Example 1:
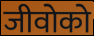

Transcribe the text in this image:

जीवोको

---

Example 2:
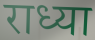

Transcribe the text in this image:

राध्या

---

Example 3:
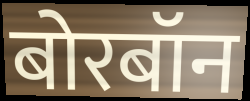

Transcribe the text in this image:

बोरबॉन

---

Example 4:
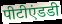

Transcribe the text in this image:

पीटीएंडडी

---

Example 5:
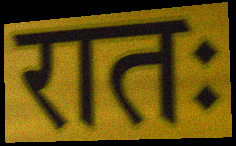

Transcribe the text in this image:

रातः